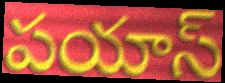
పయాస్